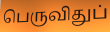
பெருவிதுப்